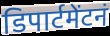
डिपार्टमेंटनं